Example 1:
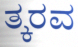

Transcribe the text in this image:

ತ್ಕರವ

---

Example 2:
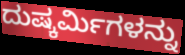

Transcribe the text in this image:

ದುಷ್ಕರ್ಮಿಗಳನ್ನು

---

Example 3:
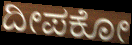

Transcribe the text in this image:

ದೀಪಕೋ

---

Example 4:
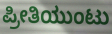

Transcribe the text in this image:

ಪ್ರೀತಿಯುಂಟು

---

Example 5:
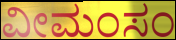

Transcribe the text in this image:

ವೀಮಂಸಂ